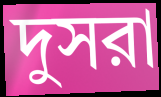
দুসরা